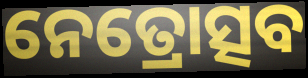
ନେତ୍ରୋତ୍ସବ